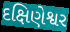
દક્ષિણેશ્વર